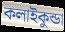
কলাইকুন্ডা